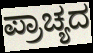
ಪ್ರಾಚ್ಯದ